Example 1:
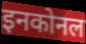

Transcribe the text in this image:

इनकोनल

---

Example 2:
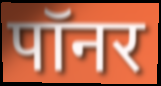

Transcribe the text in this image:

पॉनर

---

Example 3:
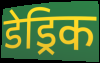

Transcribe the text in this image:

डेड्रिक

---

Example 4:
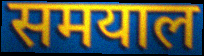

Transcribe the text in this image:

समयाल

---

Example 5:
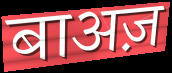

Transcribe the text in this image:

बाअज़